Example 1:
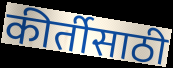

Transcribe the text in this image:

कीर्तीसाठी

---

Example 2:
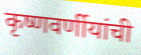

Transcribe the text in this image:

कृष्णवर्णीयांची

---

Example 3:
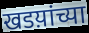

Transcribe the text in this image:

खडय़ांच्या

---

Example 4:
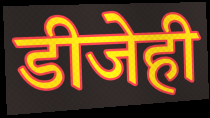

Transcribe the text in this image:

डीजेही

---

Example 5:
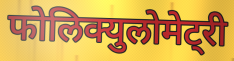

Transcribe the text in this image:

फोलिक्युलोमेट्री